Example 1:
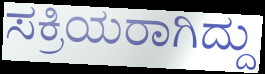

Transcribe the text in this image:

ಸಕ್ರಿಯರಾಗಿದ್ದು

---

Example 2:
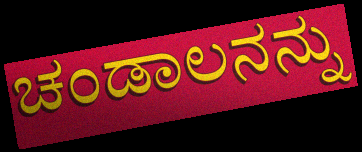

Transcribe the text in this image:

ಚಂಡಾಲನನ್ನು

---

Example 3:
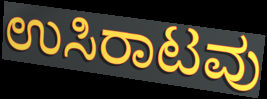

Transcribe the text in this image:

ಉಸಿರಾಟವು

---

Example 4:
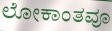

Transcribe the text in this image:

ಲೋಕಾಂತವೂ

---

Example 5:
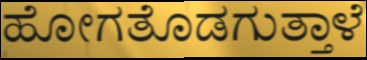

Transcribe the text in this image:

ಹೋಗತೊಡಗುತ್ತಾಳೆ